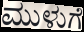
ಮುಳುಗೆ